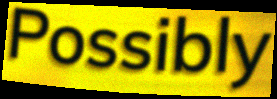
Possibly